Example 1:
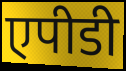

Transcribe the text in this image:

एपीडी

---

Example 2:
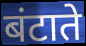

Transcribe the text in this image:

बंटाते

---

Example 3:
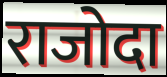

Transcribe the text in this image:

राजोदा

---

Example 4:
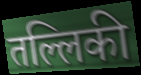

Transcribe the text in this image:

तल्लिकी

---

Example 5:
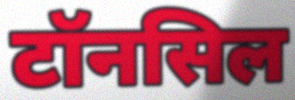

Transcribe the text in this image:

टॉनसिल